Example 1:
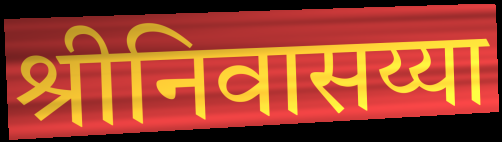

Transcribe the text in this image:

श्रीनिवासय्या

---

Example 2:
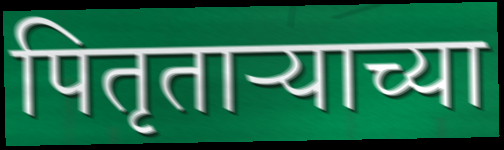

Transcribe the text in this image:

पितृताऱ्याच्या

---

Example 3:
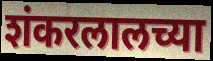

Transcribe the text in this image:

शंकरलालच्या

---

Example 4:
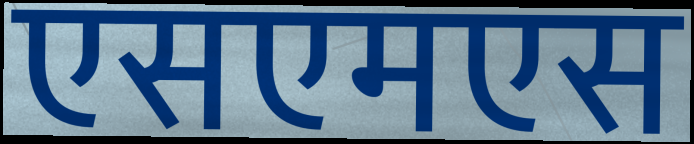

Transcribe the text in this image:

एसएमएस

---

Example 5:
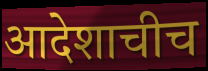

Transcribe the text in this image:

आदेशाचीच